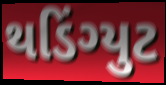
થડિંગ્યુટ